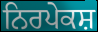
ਨਿਰਪੇਕਸ਼